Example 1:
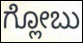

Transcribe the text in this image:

ಗ್ಲೋಬು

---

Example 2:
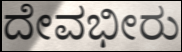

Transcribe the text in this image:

ದೇವಭೀರು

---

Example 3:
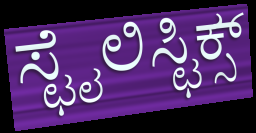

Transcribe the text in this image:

ಸ್ಟೈಲಿಸ್ಟಿಕ್ಸ್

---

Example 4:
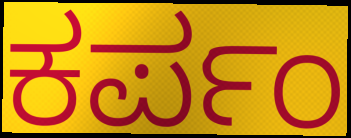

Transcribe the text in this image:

ಕರ್ಪಂ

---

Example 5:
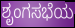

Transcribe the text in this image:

ಶೃಂಗಸಭೆಯ